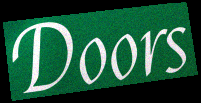
Doors